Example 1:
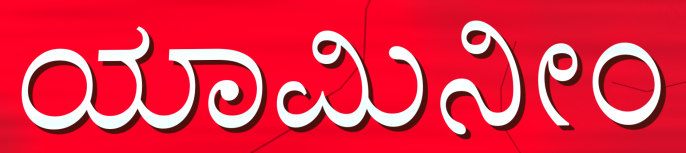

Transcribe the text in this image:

ಯಾಮಿನೀಂ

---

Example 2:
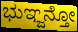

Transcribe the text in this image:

ಭುಞ್ಜನ್ತೋ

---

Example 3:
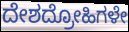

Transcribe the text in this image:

ದೇಶದ್ರೋಹಿಗಳೇ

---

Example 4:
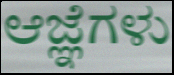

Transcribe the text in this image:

ಆಜ್ಞೆಗಳು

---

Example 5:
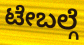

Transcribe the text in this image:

ಟೇಬಲ್ಗೆ